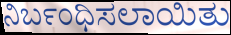
ನಿರ್ಬಂಧಿಸಲಾಯಿತು